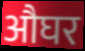
औघर